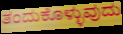
ತಂದುಕೊಳ್ಳುವುದು